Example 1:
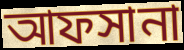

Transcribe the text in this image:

আফসানা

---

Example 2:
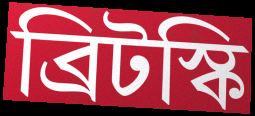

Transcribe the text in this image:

ব্রিটস্কি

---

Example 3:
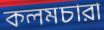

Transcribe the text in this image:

কলমচারা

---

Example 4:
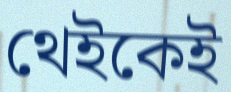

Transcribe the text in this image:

থেইকেই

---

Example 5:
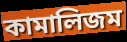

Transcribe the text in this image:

কামালিজম